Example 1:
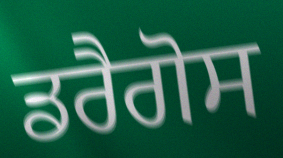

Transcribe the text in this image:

ਡਰੈਗੋਸ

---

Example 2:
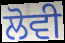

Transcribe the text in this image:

ਲੋਵੀ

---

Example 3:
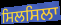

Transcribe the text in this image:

ਸਿਲਸਿਲਾ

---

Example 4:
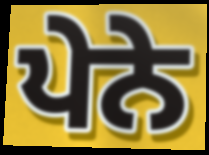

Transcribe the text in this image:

ਪੇਨੇ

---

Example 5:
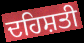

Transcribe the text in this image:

ਦਹਿਸ਼ਤੀ